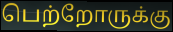
பெற்றோருக்கு